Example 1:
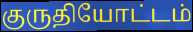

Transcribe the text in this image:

குருதியோட்டம்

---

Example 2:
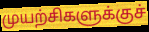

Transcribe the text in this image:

முயற்சிகளுக்குச்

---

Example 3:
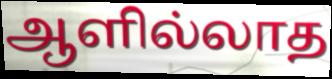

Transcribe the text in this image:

ஆளில்லாத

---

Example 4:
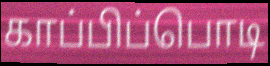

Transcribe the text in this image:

காப்பிப்பொடி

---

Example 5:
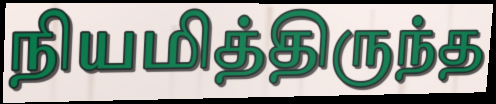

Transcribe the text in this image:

நியமித்திருந்த